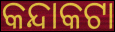
କନ୍ଦାକଟା